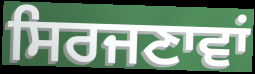
ਸਿਰਜਣਾਵਾਂ